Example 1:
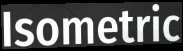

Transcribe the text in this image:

Isometric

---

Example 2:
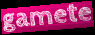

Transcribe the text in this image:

gamete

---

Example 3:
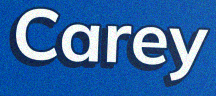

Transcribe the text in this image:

Carey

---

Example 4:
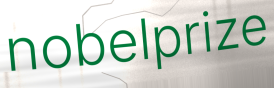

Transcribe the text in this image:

nobelprize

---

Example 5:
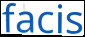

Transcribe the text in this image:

facis